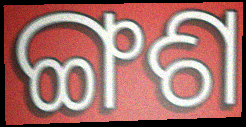
ଙ୍ଗଶ